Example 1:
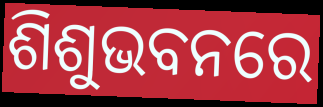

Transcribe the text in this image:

ଶିଶୁଭବନରେ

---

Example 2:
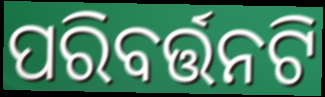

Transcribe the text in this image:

ପରିବର୍ତ୍ତନଟି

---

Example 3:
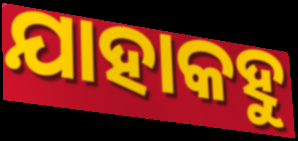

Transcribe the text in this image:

ଯାହାକହୁ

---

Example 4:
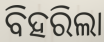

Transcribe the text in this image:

ବିହରିଲା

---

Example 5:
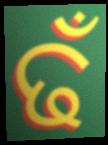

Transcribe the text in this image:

ଢଁ